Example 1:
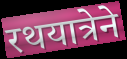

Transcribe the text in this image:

रथयात्रेने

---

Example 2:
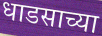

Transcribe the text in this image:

धाडसाच्या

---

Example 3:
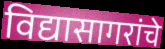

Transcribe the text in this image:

विद्यासागरांचे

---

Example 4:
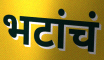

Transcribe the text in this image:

भटांचं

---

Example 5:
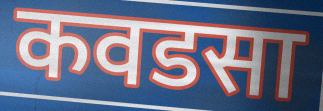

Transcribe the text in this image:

कवडसा